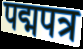
पद्मपत्र